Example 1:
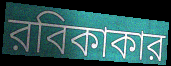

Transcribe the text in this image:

রবিকাকার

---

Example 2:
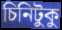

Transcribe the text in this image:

চিনিটুকু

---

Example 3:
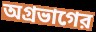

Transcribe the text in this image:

অগ্রভাগের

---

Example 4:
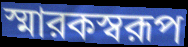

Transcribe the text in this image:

স্মারকস্বরূপ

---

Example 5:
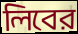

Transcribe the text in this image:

লিবের